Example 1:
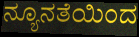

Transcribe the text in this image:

ನ್ಯೂನತೆಯಿಂದ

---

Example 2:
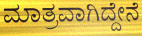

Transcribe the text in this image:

ಮಾತ್ರವಾಗಿದ್ದೇನೆ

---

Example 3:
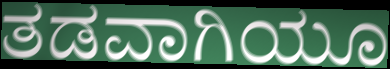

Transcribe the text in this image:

ತಡವಾಗಿಯೂ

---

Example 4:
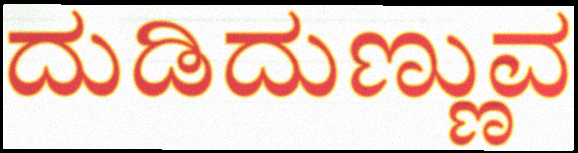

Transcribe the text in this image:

ದುಡಿದುಣ್ಣುವ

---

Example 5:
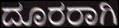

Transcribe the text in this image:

ದೂರರಾಗಿ